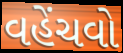
વહેંચવો